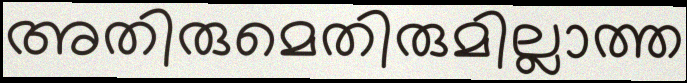
അതിരുമെതിരുമില്ലാത്ത